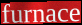
furnace